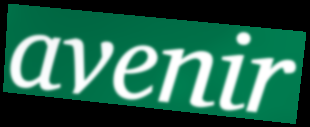
avenir